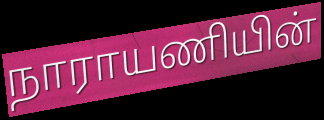
நாராயணியின்